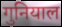
गुनियाल